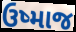
ઉષ્માજ